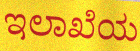
ಇಲಾಖೆಯ